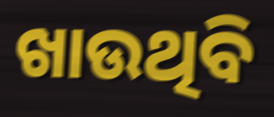
ଖାଉଥିବି